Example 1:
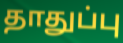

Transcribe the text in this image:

தாதுப்பு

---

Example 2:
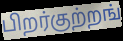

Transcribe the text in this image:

பிறர்குற்றங்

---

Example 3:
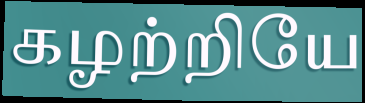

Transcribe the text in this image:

கழற்றியே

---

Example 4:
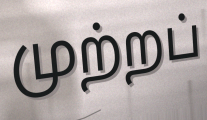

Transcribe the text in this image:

முற்றப்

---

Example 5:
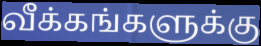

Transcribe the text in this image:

வீக்கங்களுக்கு